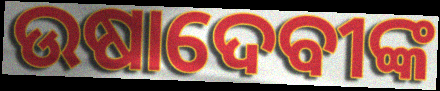
ଉଷାଦେବୀଙ୍କ